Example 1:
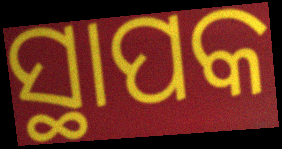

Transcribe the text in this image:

ସ୍ଥାପକ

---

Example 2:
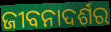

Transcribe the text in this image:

ଜୀବନାଦର୍ଶର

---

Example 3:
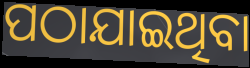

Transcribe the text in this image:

ପଠାଯାଇଥିବା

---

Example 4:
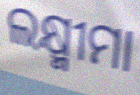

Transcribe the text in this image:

ଲକ୍ଷ୍ମୀମା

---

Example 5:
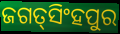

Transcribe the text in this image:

ଜଗତ୍‌ସିଂହପୁର